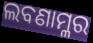
ଲବଣାମ୍ଳର